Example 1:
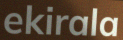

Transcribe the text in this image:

ekirala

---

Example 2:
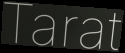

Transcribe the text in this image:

Tarat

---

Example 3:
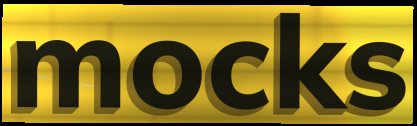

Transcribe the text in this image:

mocks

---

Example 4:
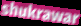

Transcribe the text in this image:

shukrawar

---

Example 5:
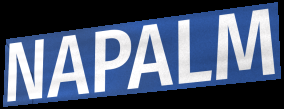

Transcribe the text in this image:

NAPALM